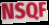
NSQF